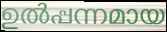
ഉൽപ്പന്നമായ